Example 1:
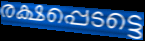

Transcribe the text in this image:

രക്ഷപ്പെടട്ടെ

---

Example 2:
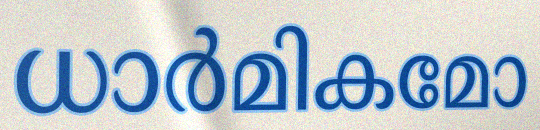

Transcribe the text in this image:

ധാർമികമോ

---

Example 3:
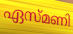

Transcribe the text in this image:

ഏസ്മണി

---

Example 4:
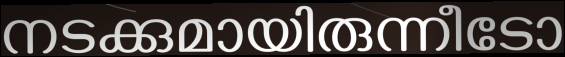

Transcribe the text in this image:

നടക്കുമായിരുന്നീടോ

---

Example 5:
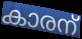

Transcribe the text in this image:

കാരന്